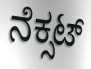
ನೆಕ್ಸಟ್